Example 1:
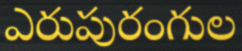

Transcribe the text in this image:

ఎరుపురంగుల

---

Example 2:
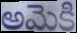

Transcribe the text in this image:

అమెకి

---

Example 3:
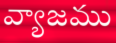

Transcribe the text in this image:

వ్యాజము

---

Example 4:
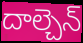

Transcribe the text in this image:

దాల్చెన్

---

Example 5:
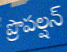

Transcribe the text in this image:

ప్రొపల్షన్